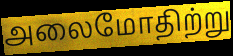
அலைமோதிற்று